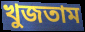
খুজতাম